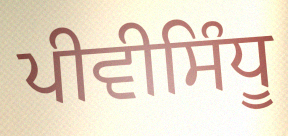
ਪੀਵੀਸਿੰਧੂ